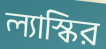
ল্যাস্কির